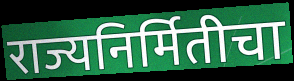
राज्यनिर्मितीचा